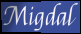
Migdal